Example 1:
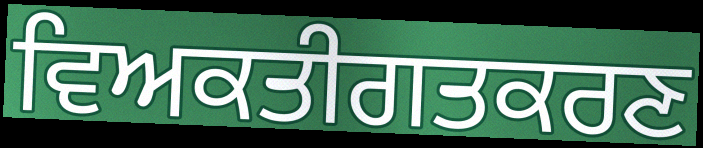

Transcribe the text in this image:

ਵਿਅਕਤੀਗਤਕਰਣ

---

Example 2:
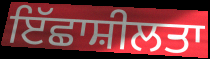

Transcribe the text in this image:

ਇੱਛਾਸ਼ੀਲਤਾ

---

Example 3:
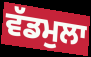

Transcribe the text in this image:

ਵੱਡਮੁਲਾ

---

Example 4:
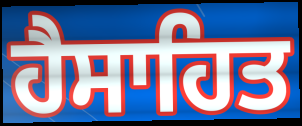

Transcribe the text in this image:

ਹੈਸਾਹਿਤ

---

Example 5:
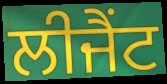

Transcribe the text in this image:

ਲੀਜੈਂਟ